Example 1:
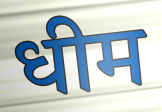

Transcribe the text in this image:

धीम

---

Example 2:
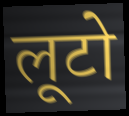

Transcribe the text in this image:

लूटो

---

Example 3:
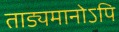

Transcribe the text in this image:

ताड्यमानोऽपि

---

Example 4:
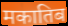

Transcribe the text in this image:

मकातिब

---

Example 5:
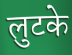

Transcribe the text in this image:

लुटके